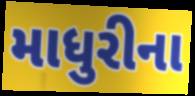
માધુરીના